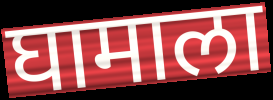
घामाला